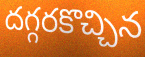
దగ్గరకొచ్చిన